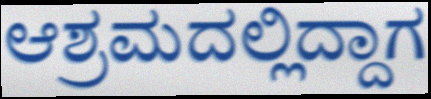
ಆಶ್ರಮದಲ್ಲಿದ್ದಾಗ